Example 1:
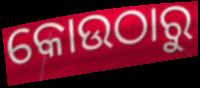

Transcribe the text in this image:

କୋଉଠାରୁ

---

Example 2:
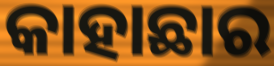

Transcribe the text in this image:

କାହାଛାର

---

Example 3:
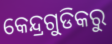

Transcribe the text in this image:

କେନ୍ଦ୍ରଗୁଡିକରୁ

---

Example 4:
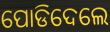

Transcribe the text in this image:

ପୋଡିଦେଲେ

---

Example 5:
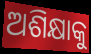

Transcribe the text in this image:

ଅଶିକ୍ଷାକୁ